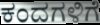
ಕಂದಗಳಿಗೆ